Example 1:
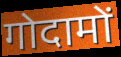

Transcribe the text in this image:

गोदामों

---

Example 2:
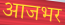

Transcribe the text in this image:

आजभर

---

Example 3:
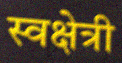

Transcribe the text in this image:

स्वक्षेत्री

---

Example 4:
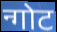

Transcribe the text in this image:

न्गोट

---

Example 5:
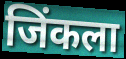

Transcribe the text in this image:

जिंकला